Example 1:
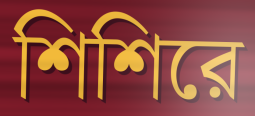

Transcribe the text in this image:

শিশিরে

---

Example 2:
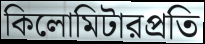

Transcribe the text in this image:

কিলোমিটারপ্রতি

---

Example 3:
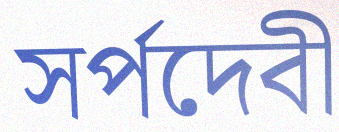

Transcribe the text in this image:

সর্পদেবী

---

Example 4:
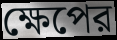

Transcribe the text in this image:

ক্ষেপের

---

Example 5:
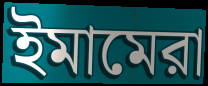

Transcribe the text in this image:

ইমামেরা